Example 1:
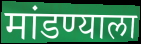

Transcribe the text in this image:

मांडण्याला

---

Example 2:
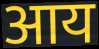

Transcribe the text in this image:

आय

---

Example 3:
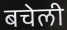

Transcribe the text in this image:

बचेली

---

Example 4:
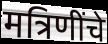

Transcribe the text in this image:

मत्रिणींचे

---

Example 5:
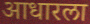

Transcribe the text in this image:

आधारला